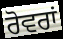
ਰੋਵਰਾਂ